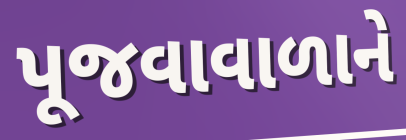
પૂજવાવાળાને